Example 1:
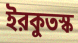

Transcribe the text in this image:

ইরকুতস্ক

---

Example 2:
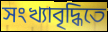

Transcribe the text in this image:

সংখ্যাবৃদ্ধিতে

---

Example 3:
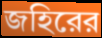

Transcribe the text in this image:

জহিরের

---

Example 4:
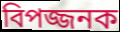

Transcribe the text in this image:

বিপজ্জনক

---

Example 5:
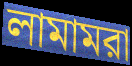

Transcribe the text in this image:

লামামরা